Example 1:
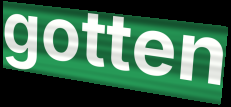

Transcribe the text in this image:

gotten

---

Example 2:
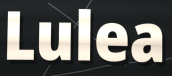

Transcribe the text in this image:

Lulea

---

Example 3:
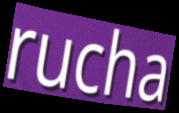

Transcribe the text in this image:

rucha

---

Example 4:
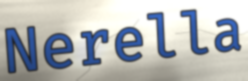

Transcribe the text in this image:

Nerella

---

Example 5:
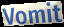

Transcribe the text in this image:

Vomit